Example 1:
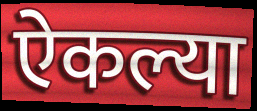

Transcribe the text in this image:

ऐकल्या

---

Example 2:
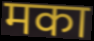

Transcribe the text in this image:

मका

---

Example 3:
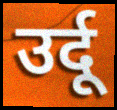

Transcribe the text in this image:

उर्दू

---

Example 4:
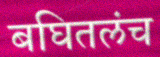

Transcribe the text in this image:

बघितलंच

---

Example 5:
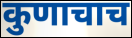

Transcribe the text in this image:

कुणाचाच